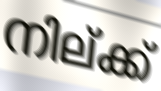
നില്ക്ക്